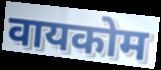
वायकोम